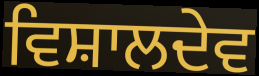
ਵਿਸ਼ਾਲਦੇਵ